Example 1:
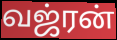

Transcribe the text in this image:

வஜ்ரன்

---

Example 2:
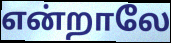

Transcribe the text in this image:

என்றாலே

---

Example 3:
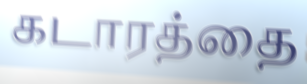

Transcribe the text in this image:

கடாரத்தை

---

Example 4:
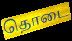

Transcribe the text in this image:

தொடை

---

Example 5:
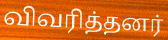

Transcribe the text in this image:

விவரித்தனர்